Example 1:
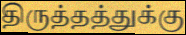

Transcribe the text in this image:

திருத்தத்துக்கு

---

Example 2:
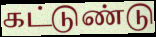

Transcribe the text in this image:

கட்டுண்டு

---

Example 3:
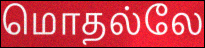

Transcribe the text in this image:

மொதல்லே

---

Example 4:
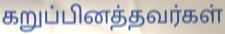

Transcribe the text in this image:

கறுப்பினத்தவர்கள்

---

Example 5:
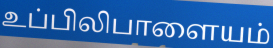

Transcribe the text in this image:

உப்பிலிபாளையம்